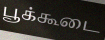
பூக்கூடை